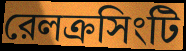
রেলক্রসিংটি